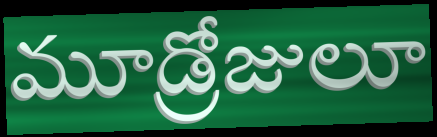
మూడ్రోజులూ